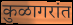
कुळागरांत